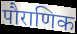
पौराणिक